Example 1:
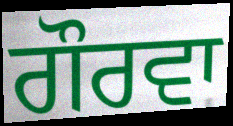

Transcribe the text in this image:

ਗੌਰਵਾ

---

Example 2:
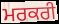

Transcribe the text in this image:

ਮਰਕਰੀ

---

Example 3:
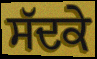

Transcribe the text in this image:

ਸੱਦਕੇ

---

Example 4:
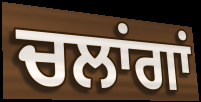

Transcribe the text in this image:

ਚਲਾਂਗਾਂ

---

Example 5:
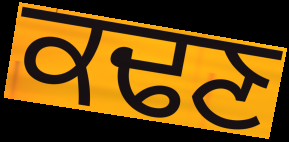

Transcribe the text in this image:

ਕਢਣ